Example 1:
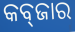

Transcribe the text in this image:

କବ୍‍ଜାର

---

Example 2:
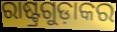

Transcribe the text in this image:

ରାଷ୍ଟ୍ରଗୁଡ଼ାକର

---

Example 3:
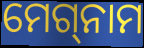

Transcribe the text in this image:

ମେଗ୍‌ନାମ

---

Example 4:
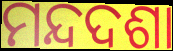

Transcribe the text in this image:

ମନ୍ଦଦଶା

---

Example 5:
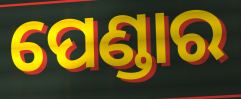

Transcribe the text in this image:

ପେଣ୍ଡାର